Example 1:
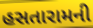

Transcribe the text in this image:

હસતારામની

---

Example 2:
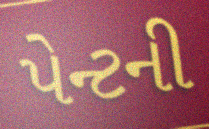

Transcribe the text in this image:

પેન્ટની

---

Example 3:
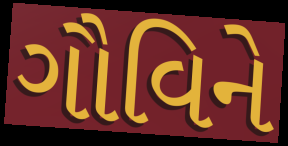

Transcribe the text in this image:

ગૌવિને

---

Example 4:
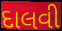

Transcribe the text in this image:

દાલવી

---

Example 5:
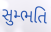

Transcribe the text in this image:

સુમ્ભતિ